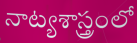
నాట్యశాస్త్రంలో